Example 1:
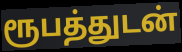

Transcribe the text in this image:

ரூபத்துடன்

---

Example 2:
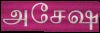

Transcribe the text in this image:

அசேஷ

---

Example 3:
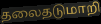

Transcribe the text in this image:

தலைதடுமாறி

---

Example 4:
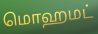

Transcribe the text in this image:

மொஹமட்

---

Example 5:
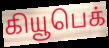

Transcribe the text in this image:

கியூபெக்